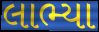
લાભ્યા